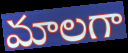
మాలగా